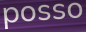
posso